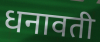
धनावती